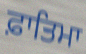
ਫ਼ਾਤਿਮਾ